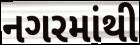
નગરમાંથી